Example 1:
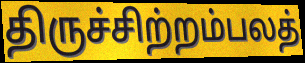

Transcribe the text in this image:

திருச்சிற்றம்பலத்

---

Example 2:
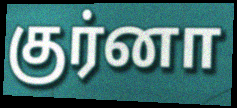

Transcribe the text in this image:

குர்னா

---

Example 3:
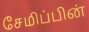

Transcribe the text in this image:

சேமிப்பின்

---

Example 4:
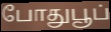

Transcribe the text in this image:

போதுபூப்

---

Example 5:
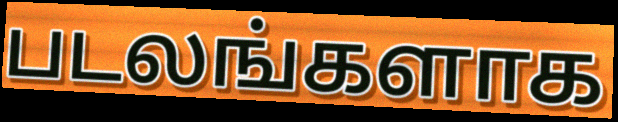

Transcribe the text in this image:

படலங்களாக